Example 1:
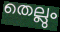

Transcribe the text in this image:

തെല്ലും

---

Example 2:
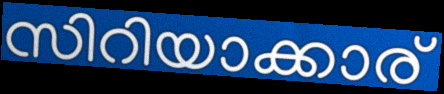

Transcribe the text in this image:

സിറിയാക്കാര്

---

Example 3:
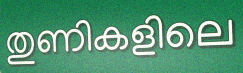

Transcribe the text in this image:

തുണികളിലെ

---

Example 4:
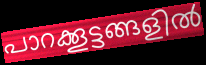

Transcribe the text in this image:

പാറക്കൂട്ടങ്ങളിൽ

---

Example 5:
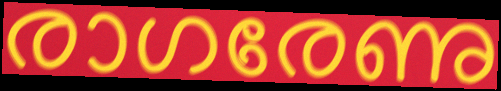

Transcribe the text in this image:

രാഗരേണു